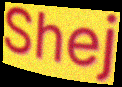
Shej